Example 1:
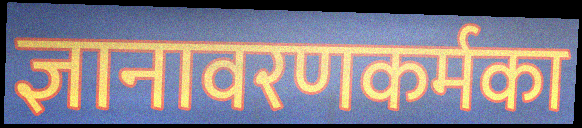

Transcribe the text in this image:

ज्ञानावरणकर्मका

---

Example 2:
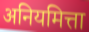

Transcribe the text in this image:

अनियमित्ता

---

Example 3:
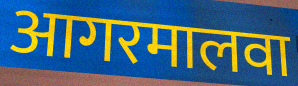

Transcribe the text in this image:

आगरमालवा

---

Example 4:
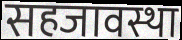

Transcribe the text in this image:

सहजावस्था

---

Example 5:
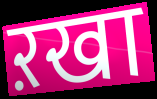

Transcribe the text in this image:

ऱखा